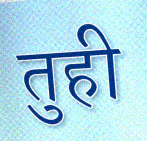
तुही